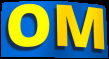
OM